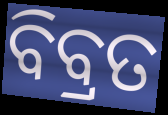
ବିବ୍ରତ